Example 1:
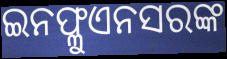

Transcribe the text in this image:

ଇନଫ୍ଳୁଏନସରଙ୍କ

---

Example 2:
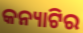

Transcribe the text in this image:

କନ୍ୟାଟିର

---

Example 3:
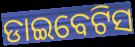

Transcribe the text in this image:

ଡାଇବେଟିସ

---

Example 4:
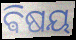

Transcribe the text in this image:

ଵିଷୟ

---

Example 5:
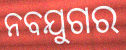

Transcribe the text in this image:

ନବଯୁଗର